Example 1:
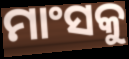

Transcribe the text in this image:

ମାଂସକୁ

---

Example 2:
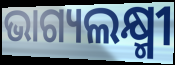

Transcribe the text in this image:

ଭାଗ୍ୟଲକ୍ଷ୍ମୀ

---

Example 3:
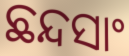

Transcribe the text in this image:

ଛନ୍ଦସାଂ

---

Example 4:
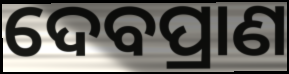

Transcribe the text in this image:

ଦେବପ୍ରାଣ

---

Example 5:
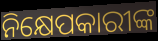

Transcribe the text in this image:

ନିକ୍ଷେପକାରୀଙ୍କ